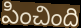
పించింది